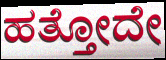
ಹತ್ತೋದೇ